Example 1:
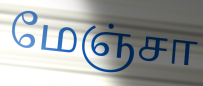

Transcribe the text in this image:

மேஞ்சா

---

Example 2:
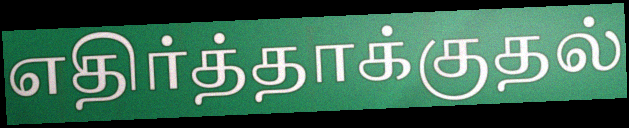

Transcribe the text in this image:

எதிர்த்தாக்குதல்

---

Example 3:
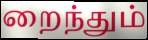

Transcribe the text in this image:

றைந்தும்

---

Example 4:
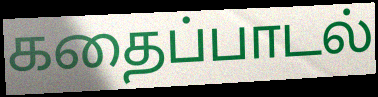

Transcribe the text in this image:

கதைப்பாடல்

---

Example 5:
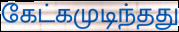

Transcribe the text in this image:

கேட்கமுடிந்தது